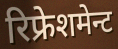
रिफ्रेशमेन्ट